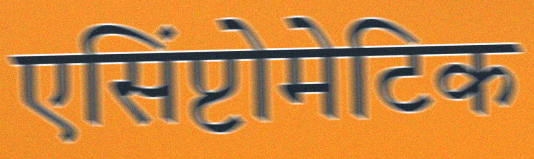
एसिंप्टोमेटिक